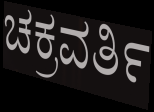
ಚಕ್ರವರ್ತಿ